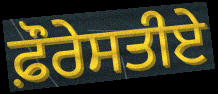
ਫ਼ੌਰੇਸਤੀਏ